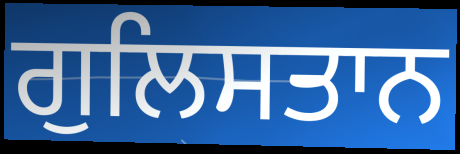
ਗੁਲਿਸਤਾਨ